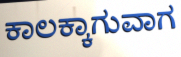
ಕಾಲಕ್ಕಾಗುವಾಗ